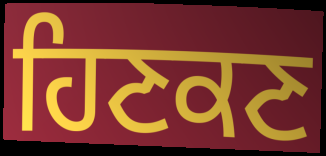
ਹਿਣਕਣ